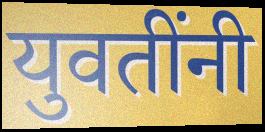
युवतींनी